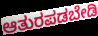
ಆತುರಪಡಬೇಡಿ